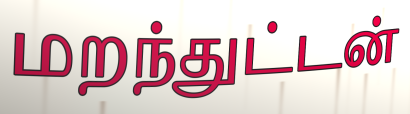
மறந்துட்டன்